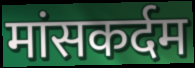
मांसकर्दम